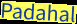
Padahal